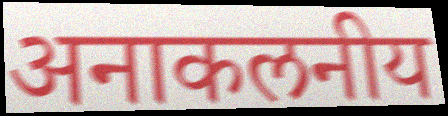
अनाकलनीय